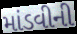
માંડવીની